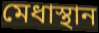
মেধাস্থান